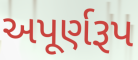
અપૂર્ણરૂપ